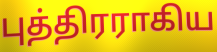
புத்திரராகிய